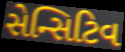
સેન્સિટિવ